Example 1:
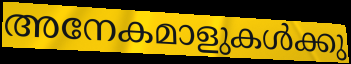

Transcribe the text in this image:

അനേകമാളുകൾക്കു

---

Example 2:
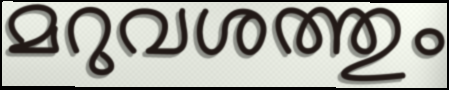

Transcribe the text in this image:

മറുവശത്തും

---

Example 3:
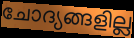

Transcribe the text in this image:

ചോദ്യങ്ങളില്ല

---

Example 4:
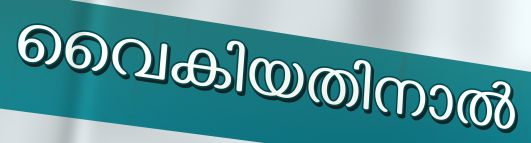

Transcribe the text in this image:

വൈകിയതിനാൽ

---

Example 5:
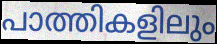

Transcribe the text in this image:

പാത്തികളിലും